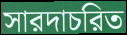
সারদাচরিত